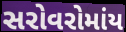
સરોવરોમાંય